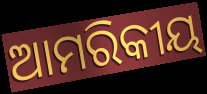
ଆମରିକୀୟ